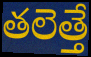
తలెత్తే